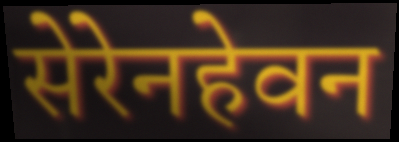
सेरेनहेवन